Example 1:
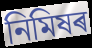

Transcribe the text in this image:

নিমিষৰ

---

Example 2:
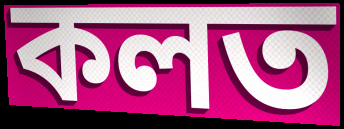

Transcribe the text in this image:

কলত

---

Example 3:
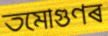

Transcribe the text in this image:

তমোগুণৰ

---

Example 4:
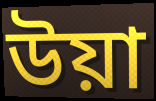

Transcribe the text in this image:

উয়া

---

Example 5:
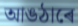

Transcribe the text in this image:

আঙঠাৰে